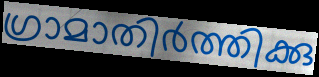
ഗ്രാമാതിർത്തിക്കു